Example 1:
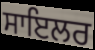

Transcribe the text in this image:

ਸਾਇਲਰ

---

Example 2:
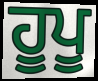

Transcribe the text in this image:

ਹੂਪੂ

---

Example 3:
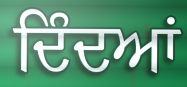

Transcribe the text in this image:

ਦਿੰਦਆਂ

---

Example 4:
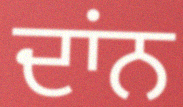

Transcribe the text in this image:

ਦਾਂਨ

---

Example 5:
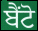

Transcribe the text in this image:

ਬੈਂਟੋ